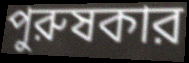
পুরুষকার